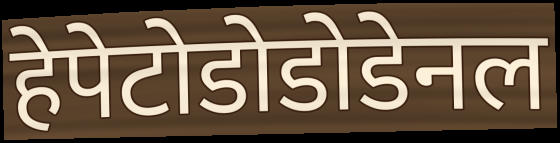
हेपेटोडोडोडेनल